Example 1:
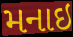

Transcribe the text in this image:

મનાઇ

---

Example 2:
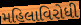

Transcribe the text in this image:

મહિલાવિરોધી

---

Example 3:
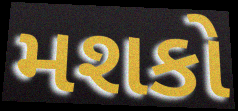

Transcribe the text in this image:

મશકો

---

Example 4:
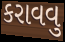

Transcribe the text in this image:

કરાવવુ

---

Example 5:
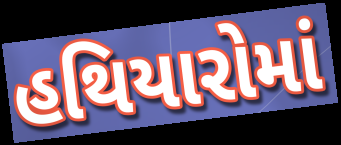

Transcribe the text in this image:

હથિયારોમાં